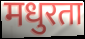
मधुरता